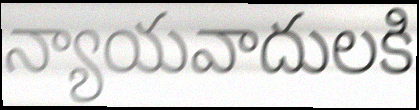
న్యాయవాదులకి